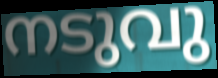
നടുവു